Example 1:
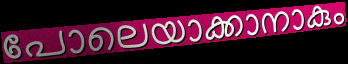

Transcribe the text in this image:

പോലെയാക്കാനാകും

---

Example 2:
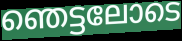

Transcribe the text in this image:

ഞെട്ടലോടെ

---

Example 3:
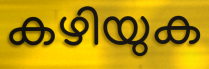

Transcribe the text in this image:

കഴിയുക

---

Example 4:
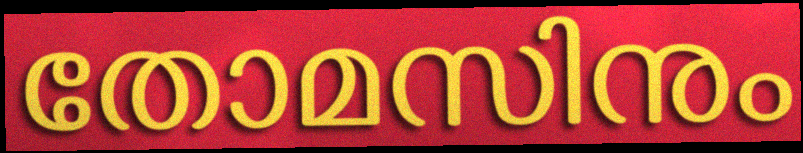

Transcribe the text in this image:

തോമസിനും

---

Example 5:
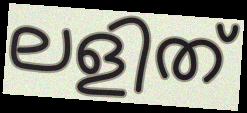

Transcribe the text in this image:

ലളിത്